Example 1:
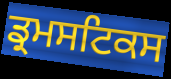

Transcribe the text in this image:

ਡ੍ਰਮਸਟਿਕਸ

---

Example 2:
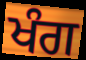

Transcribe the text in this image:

ਖੰਗ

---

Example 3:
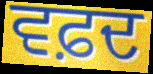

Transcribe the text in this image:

ਵਫ਼ਦ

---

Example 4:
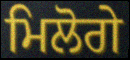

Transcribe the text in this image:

ਮਿਲੋਗੇ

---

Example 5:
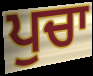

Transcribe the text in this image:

ਪੁਚਾ